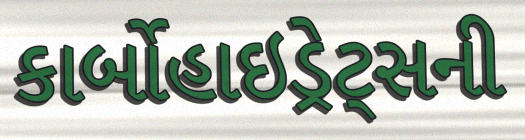
કાર્બોહાઇડ્રેટ્સની